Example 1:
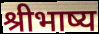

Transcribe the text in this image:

श्रीभाष्य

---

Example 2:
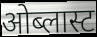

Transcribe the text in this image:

ओब्लास्ट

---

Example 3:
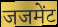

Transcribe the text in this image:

जजमेंट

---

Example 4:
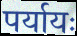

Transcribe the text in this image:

पर्यायः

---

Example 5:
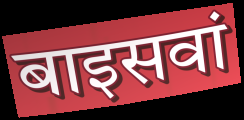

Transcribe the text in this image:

बाइसवां